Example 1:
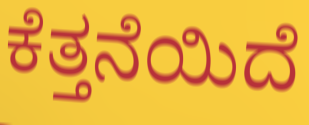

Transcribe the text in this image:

ಕೆತ್ತನೆಯಿದೆ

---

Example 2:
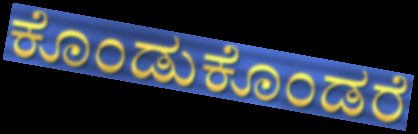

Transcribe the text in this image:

ಕೊಂಡುಕೊಂಡರೆ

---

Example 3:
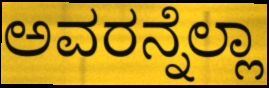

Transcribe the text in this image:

ಅವರನ್ನೆಲ್ಲಾ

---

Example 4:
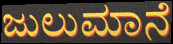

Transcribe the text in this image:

ಜುಲುಮಾನೆ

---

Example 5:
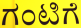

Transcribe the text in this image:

ಗಂಟಿಗೆ